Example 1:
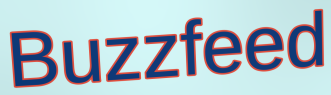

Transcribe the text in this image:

Buzzfeed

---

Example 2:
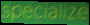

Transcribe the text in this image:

specialize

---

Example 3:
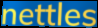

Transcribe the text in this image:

nettles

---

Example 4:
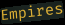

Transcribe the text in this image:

Empires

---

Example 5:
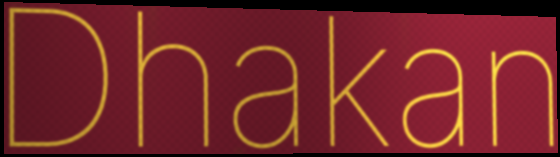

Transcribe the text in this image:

Dhakan